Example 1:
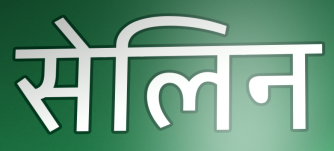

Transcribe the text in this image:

सेलिन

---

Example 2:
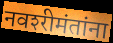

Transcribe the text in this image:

नवश्रीमंतांना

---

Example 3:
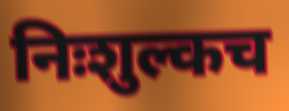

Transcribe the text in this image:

निःशुल्कच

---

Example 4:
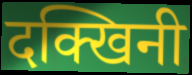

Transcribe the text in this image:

दक्खिनी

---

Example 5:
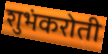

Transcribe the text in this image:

शुभंकरोती